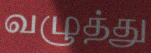
வழுத்து